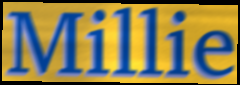
Millie